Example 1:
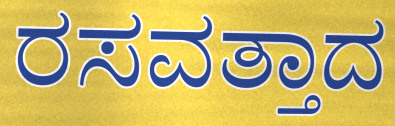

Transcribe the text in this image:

ರಸವತ್ತಾದ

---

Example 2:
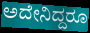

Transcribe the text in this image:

ಅದೇನಿದ್ದರೂ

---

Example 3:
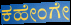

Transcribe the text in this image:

ಕಹೇಂಗೇ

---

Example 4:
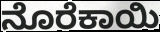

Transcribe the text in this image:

ನೊರೆಕಾಯಿ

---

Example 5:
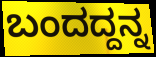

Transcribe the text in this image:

ಬಂದದ್ದನ್ನ